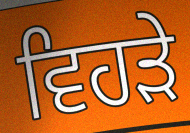
ਵਿਹੜੇ